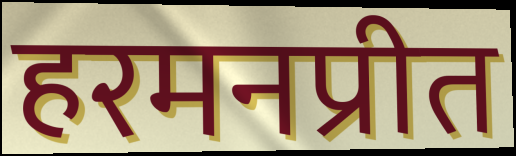
हरमनप्रीत